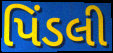
પિંડલી